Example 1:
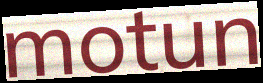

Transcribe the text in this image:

motun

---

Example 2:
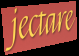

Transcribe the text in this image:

jectare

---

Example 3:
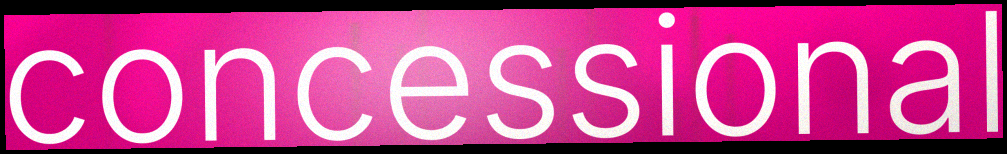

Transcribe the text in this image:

concessional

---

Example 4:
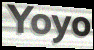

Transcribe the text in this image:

Yoyo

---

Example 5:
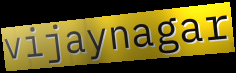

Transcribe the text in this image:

vijaynagar